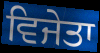
ਵਿਜੇਤਾ